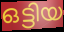
ഒട്ടിയ